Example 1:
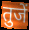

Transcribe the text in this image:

तुजें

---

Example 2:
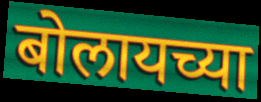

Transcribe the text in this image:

बोलायच्या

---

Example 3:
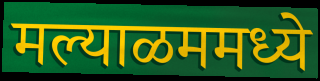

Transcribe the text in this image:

मल्याळममध्ये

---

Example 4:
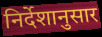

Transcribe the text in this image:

निर्देशानुसार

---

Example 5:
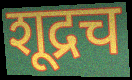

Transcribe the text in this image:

शूद्रच